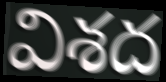
విశద